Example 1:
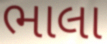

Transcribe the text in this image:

ભાલા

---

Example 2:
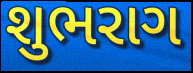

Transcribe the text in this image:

શુભરાગ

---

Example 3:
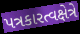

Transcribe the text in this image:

પત્રકારત્વક્ષેત્રે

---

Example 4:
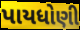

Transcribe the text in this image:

પાયધોણી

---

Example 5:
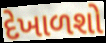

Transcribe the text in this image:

દેખાળશો